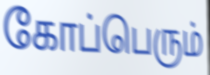
கோப்பெரும்